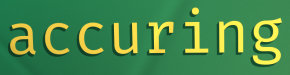
accuring